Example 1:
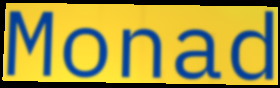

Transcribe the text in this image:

Monad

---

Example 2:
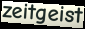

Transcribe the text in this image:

zeitgeist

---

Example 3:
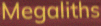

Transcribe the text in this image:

Megaliths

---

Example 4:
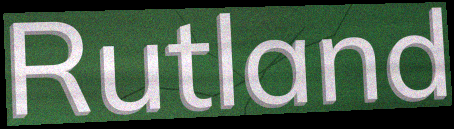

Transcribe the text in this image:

Rutland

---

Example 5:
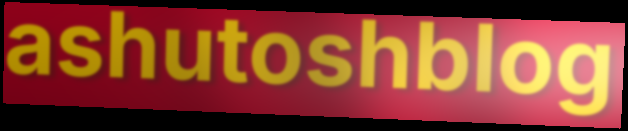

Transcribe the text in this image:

ashutoshblog